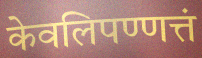
केवलिपण्णत्तं